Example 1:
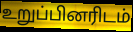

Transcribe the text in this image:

உறுப்பினரிடம்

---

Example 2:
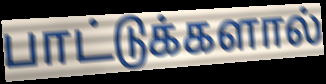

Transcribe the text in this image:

பாட்டுக்களால்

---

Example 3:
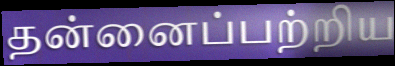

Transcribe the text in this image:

தன்னைப்பற்றிய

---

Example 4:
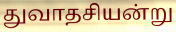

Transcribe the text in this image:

துவாதசியன்று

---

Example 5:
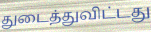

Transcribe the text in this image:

துடைத்துவிட்டது